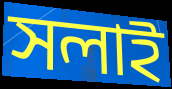
সলাই